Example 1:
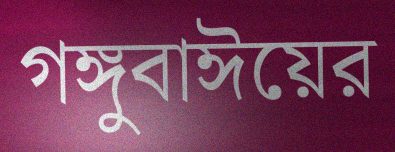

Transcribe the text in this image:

গঙ্গুবাঈয়ের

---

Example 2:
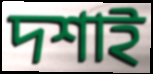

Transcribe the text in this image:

দশাই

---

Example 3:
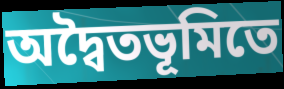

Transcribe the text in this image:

অদ্বৈতভূমিতে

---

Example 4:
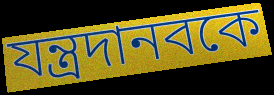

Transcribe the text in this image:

যন্ত্রদানবকে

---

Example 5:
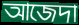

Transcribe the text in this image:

আজেদা